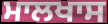
ਮਾਲਖਾਸ